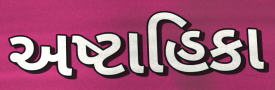
અષ્ટાહિકા